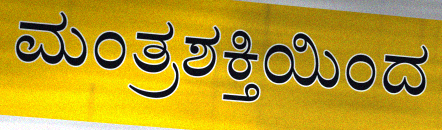
ಮಂತ್ರಶಕ್ತಿಯಿಂದ